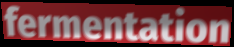
fermentation